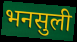
भनसुली